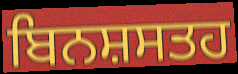
ਬਿਨਸ਼ਸਤਹ